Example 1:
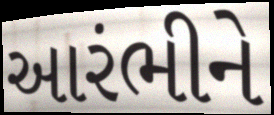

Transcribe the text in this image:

આરંભીને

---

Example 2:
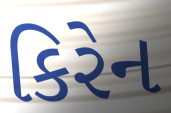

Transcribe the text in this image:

કિરેન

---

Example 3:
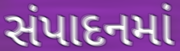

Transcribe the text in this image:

સંપાદનમાં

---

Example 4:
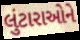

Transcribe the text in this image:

લુંટારાઓને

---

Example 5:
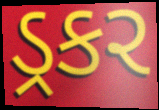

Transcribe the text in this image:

ડ્રકર